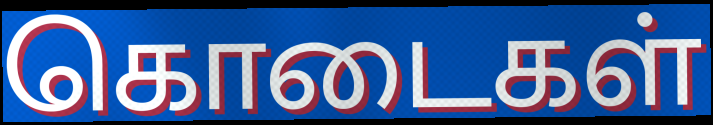
கொடைகள்